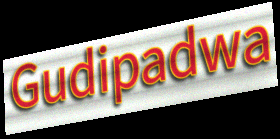
Gudipadwa